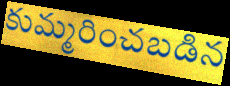
కుమ్మరించబడిన